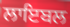
ਲਾਇਬਲ